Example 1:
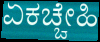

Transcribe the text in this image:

ಏಕಚ್ಚೇಹಿ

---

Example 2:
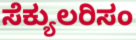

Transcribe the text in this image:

ಸೆಕ್ಯುಲರಿಸಂ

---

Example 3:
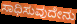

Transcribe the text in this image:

ಸಾಧಿಸುವುದೇನು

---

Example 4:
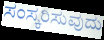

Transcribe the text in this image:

ಸಂಸ್ಕರಿಸುವುದು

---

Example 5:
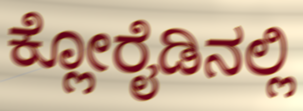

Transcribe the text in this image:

ಕ್ಲೋರೈಡಿನಲ್ಲಿ